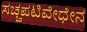
ಸಚ್ಚಪಟಿವೇಧೇನ